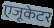
एजूकेटर